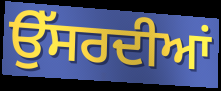
ਉੱਸਰਦੀਆਂ